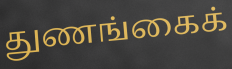
துணங்கைக்